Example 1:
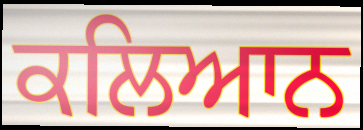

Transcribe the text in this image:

ਕਲਿਆਨ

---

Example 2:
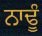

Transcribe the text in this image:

ਨਾਢੂੰ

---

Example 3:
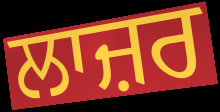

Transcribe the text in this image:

ਲਾਜ਼ਰ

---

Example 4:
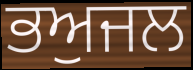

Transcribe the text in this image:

ਭਅੁਜਲ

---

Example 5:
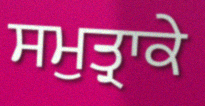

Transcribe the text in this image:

ਸਮੁਤ੍ਰਾਕੇ